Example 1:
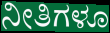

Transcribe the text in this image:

ನೀತಿಗಳೂ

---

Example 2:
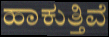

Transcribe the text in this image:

ಹಾಕುತ್ತಿವೆ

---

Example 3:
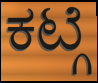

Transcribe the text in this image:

ಕಟ್ಗೆ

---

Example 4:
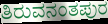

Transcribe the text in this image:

ತಿರುವನಂತಪುರ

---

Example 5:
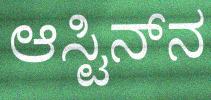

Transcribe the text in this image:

ಆಸ್ಟಿನ್‌ನ